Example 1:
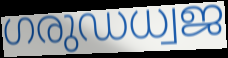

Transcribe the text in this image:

ഗരുഡധ്വജ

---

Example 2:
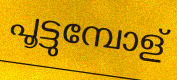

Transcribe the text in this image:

പൂട്ടുമ്പോള്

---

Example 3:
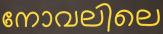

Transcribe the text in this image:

നോവലിലെ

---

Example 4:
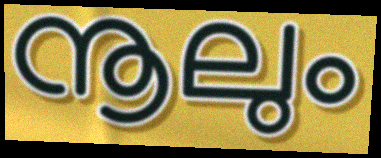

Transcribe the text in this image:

നൂലും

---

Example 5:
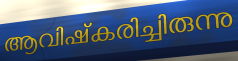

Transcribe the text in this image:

ആവിഷ്‌കരിച്ചിരുന്നു